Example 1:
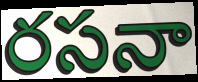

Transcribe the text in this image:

రసనా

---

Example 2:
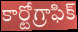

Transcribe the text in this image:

కార్టోగ్రాఫిక్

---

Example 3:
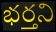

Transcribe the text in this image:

భర్తని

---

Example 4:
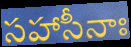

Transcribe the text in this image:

సహాసీనాః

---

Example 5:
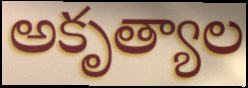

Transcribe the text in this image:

అకృత్యాల